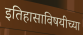
इतिहासाविषयीच्या